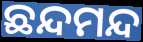
ଛନ୍ଦମନ୍ଦ